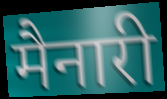
मैनारी